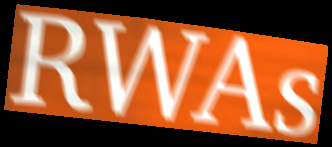
RWAs